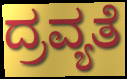
ದ್ರವ್ಯತೆ